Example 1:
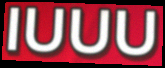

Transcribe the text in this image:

IUUU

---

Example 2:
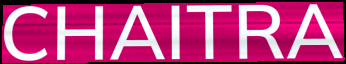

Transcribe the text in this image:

CHAITRA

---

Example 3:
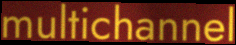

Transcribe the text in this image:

multichannel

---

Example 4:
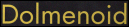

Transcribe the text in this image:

Dolmenoid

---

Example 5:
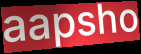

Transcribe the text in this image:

aapsho